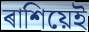
ৰাশিয়েই